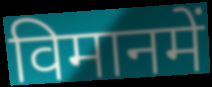
विमानमें